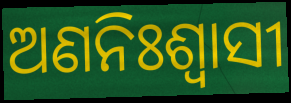
ଅଣନିଃଶ୍ଵାସୀ